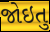
જોઇતુ